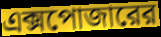
এক্সপোজারের